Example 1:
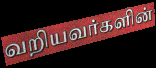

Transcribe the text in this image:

வறியவர்களின்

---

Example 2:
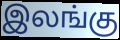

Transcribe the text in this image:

இலங்கு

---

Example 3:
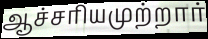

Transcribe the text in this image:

ஆச்சரியமுற்றார்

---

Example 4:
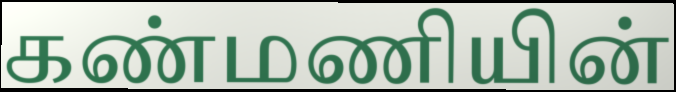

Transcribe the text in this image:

கண்மணியின்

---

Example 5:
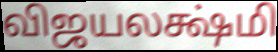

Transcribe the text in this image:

விஜயலக்ஷ்மி